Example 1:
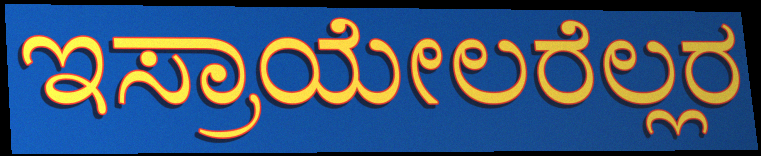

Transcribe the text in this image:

ಇಸ್ರಾಯೇಲರೆಲ್ಲರ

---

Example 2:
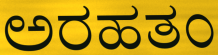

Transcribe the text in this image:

ಅರಹತಂ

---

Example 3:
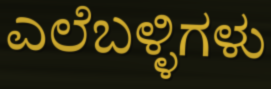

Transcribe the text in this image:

ಎಲೆಬಳ್ಳಿಗಳು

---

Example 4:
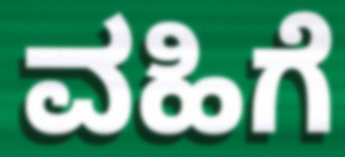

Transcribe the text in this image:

ವಹಿಗೆ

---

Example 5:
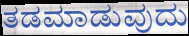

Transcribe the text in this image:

ತಡಮಾಡುವುದು